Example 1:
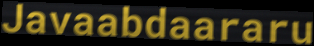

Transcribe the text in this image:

Javaabdaararu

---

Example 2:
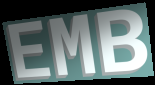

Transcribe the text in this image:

EMB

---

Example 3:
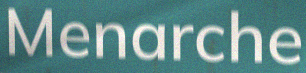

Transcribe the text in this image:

Menarche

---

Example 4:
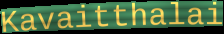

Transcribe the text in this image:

Kavaitthalai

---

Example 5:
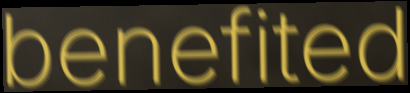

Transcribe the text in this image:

benefited